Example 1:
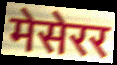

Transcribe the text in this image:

मेसेरर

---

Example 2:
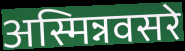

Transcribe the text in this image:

अस्मिन्नवसरे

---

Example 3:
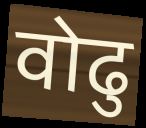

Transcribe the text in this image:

वोढु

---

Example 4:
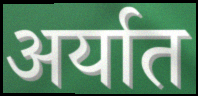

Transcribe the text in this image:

अर्यात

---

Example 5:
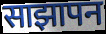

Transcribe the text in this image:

साझापन